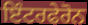
ਇੰਟਰਫੇਰੋਨ